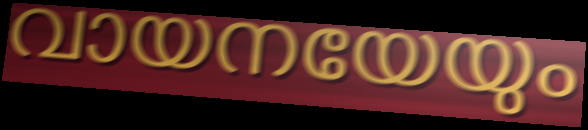
വായനയേയും